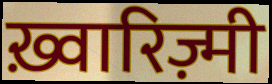
ख़्वारिज़्मी